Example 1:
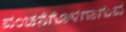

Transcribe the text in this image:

ವಂಚನೆಗೊಳಗಾಗುವ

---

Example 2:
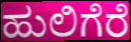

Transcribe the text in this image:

ಹುಲಿಗೆರೆ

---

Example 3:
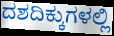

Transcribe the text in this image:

ದಶದಿಕ್ಕುಗಳಲ್ಲಿ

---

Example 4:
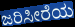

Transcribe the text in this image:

ಜರಿಸೀರೆಯ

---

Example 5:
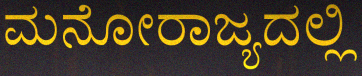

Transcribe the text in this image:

ಮನೋರಾಜ್ಯದಲ್ಲಿ